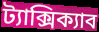
ট্যাক্সিক্যাব